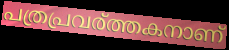
പത്രപ്രവര്ത്തകനാണ്